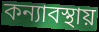
কন্যাবস্থায়